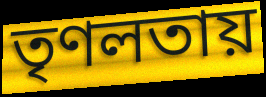
তৃণলতায়